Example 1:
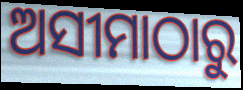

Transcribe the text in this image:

ଅସୀମାଠାରୁ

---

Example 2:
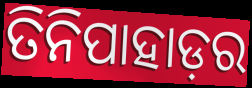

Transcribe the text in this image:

ତିନିପାହାଡ଼ର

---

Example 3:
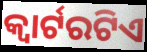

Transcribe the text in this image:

କ୍ୱାର୍ଟରଟିଏ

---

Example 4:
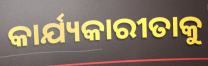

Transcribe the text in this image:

କାର୍ଯ୍ୟକାରୀତାକୁ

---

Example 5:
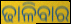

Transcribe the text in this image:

ଢାଳିବାର